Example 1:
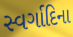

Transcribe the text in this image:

સ્વર્ગાદિના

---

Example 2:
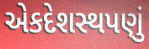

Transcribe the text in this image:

એકદેશસ્થપણું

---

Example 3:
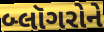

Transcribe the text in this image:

બ્લૉગરોને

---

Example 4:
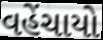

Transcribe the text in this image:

વહેંચાયો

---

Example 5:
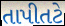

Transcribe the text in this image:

તાપીતટે